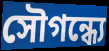
সৌগন্ধ্যে